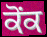
ਕੋਂਕ